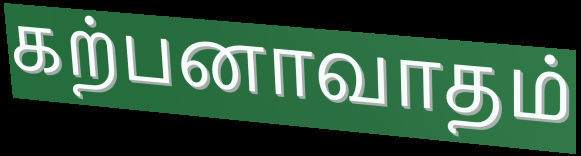
கற்பனாவாதம்